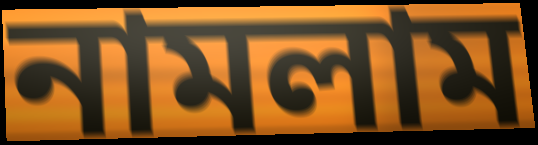
নামলাম